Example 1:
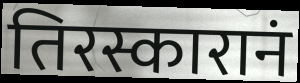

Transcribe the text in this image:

तिरस्कारानं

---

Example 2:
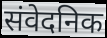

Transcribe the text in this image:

संवेदनिक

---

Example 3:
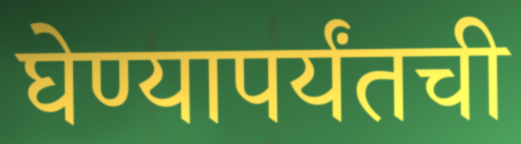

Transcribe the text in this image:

घेण्यापर्यंतची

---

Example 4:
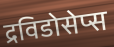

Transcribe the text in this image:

द्रविडोसेप्स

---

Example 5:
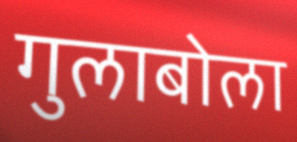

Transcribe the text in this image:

गुलाबोला